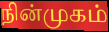
நின்முகம்